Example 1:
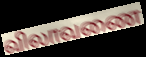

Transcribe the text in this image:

விலாவணை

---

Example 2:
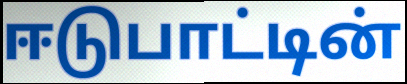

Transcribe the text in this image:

ஈடுபாட்டின்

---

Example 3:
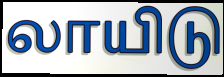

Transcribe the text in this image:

லாயிடு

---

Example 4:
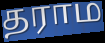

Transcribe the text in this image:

தராம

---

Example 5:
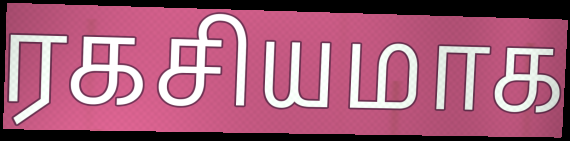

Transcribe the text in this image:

ரகசியமாக